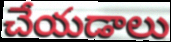
చేయడాలు